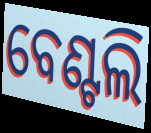
ବେଣ୍ଟଲି